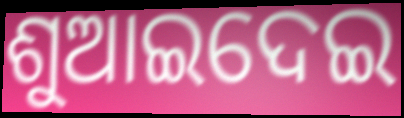
ଶୁଆଇଦେଇ